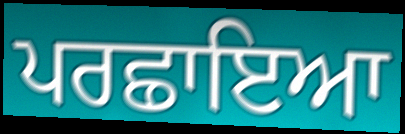
ਪਰਛਾਇਆ